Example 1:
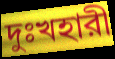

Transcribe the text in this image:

দুঃখহারী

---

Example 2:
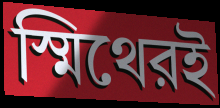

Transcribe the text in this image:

স্মিথেরই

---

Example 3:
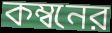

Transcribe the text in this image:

কম্বনের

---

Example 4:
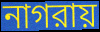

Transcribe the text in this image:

নাগরায়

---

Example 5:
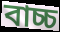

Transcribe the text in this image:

বাচ্চ